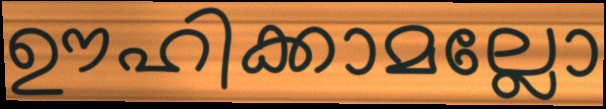
ഊഹിക്കാമല്ലോ